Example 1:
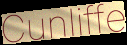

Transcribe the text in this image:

Cunliffe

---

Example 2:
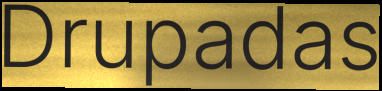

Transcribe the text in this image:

Drupadas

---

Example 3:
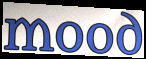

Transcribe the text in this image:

mood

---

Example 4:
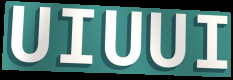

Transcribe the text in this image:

UIUUI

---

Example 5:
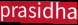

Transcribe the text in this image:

prasidha